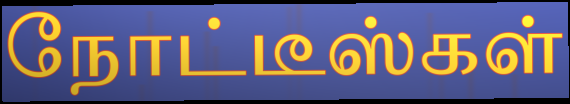
நோட்டீஸ்கள்